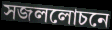
সজললোচনে